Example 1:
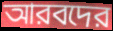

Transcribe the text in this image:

আরবদের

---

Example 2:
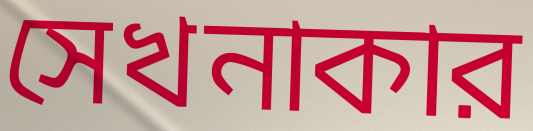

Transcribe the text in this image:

সেখনাকার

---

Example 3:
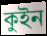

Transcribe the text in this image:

কুইন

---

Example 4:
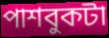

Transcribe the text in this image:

পাশবুকটা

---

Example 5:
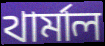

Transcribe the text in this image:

থার্মাল